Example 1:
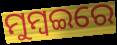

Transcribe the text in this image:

ମୁମ୍ବଇରେ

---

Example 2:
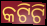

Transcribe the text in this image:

କଟିଟି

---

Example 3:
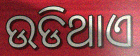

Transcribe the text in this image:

ଉଡିଥାଏ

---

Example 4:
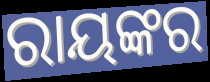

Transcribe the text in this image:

ରାୟଙ୍କର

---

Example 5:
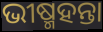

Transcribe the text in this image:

ଭୀଷ୍ମହନ୍ତା